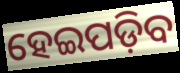
ହେଇପଡ଼ିବ